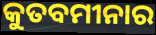
କୁତବମୀନାର